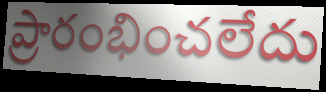
ప్రారంభించలేదు